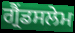
ਗ੍ਰੈਂਡਸਲੇਮ